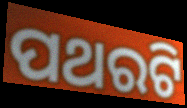
ପଥରଟି